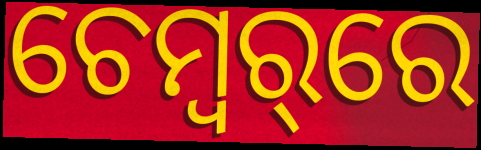
ଚେମ୍ବର୍‌ରେ